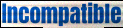
Incompatible